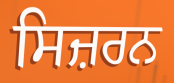
ਸਿਜ਼ਰਨ